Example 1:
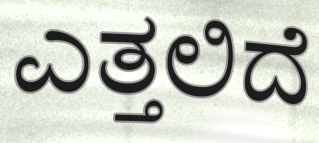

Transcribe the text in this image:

ಎತ್ತಲಿದೆ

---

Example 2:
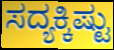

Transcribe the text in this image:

ಸದ್ಯಕ್ಕಿಷ್ಟು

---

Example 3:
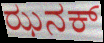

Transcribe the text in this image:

ಝನಕ್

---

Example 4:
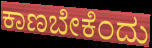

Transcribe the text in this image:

ಕಾಣಬೇಕೆಂದು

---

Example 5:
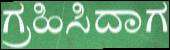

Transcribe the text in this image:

ಗ್ರಹಿಸಿದಾಗ